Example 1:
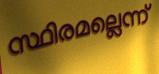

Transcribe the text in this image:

സ്ഥിരമല്ലെന്ന്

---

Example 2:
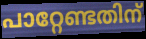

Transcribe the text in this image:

പാറ്റേണ്ടതിന്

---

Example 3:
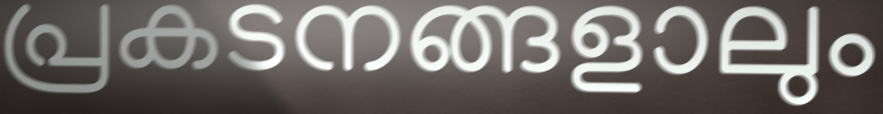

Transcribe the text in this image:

പ്രകടനങ്ങളാലും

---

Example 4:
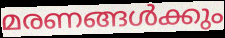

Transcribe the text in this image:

മരണങ്ങൾക്കും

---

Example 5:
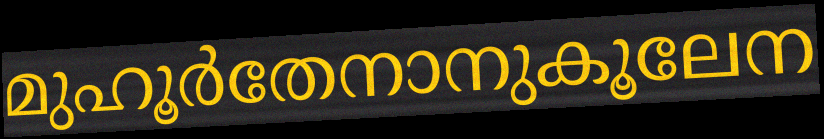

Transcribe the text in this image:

മുഹൂർതേനാനുകൂലേന